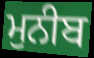
ਮੁਨੀਬ